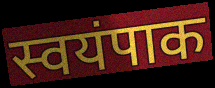
स्वयंपाक